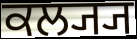
ਕਲ੍ਯ੍ਯ